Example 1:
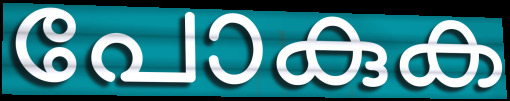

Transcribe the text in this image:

പോകുക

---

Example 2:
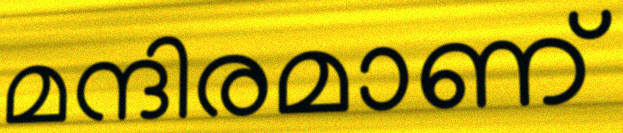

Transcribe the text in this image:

മന്ദിരമാണ്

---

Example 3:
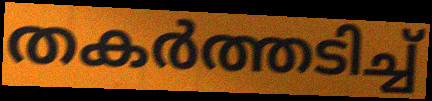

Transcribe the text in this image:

തകർത്തടിച്ച്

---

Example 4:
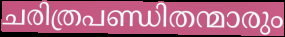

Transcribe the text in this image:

ചരിത്രപണ്ഡിതന്മാരും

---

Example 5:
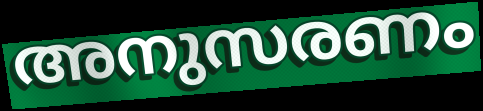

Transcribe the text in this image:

അനുസരണം